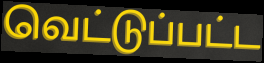
வெட்டுப்பட்ட